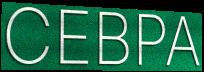
CEBPA